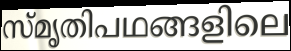
സ്മൃതിപഥങ്ങളിലെ